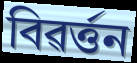
বিৱৰ্ত্তন